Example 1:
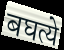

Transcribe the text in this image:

बघत्ये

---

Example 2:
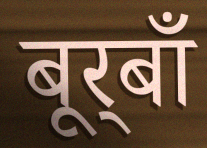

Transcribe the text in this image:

बूर्‌बाँ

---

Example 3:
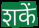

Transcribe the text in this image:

शकें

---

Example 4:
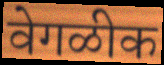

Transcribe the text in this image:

वेगळीक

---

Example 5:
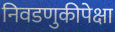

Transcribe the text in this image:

निवडणुकीपेक्षा